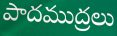
పాదముద్రలు